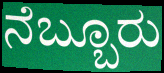
ನೆಬ್ಬೂರು